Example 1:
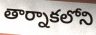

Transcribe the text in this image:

తార్నాకలోని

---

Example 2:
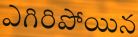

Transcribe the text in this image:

ఎగిరిపోయిన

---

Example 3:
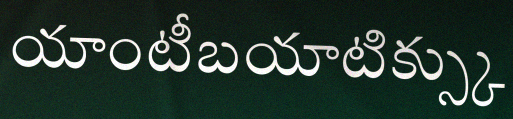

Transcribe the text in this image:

యాంటీబయాటిక్స్కు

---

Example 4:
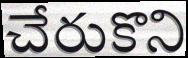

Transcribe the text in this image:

చేరుకొని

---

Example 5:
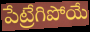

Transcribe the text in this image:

పేట్రేగిపోయే